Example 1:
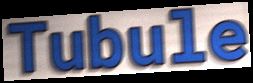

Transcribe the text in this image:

Tubule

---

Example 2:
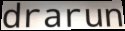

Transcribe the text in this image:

drarun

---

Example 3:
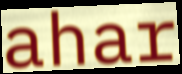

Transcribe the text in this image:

ahar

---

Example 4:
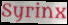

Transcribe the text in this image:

Syrinx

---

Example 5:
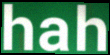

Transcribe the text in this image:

hah